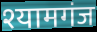
श्यामगंज